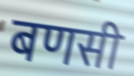
बणसी